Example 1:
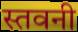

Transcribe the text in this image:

स्तवनी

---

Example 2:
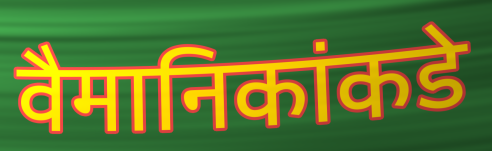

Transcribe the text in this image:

वैमानिकांकडे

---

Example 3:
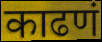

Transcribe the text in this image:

काढणं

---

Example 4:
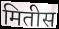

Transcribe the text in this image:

मितीस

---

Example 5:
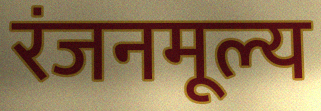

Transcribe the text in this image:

रंजनमूल्य